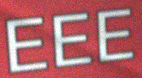
EEE